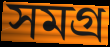
সমগ্র